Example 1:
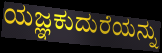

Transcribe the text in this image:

ಯಜ್ಞಕುದುರೆಯನ್ನು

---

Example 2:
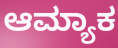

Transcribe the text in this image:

ಆಮ್ಯಾಕ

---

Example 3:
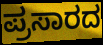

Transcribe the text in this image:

ಪ್ರಸಾರದ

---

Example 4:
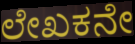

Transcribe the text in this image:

ಲೇಖಕನೇ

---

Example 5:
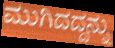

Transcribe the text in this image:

ಮುಗಿದದ್ದನ್ನು